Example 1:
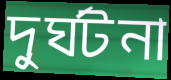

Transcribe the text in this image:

দুর্ঘটনা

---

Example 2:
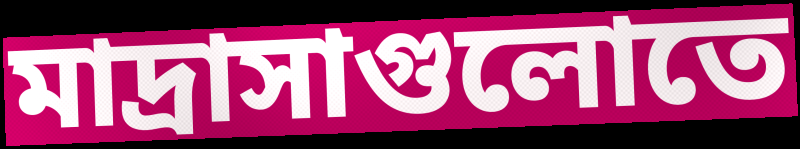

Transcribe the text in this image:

মাদ্রাসাগুলোতে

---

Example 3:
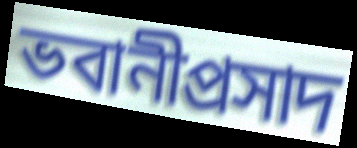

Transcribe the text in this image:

ভবানীপ্রসাদ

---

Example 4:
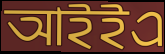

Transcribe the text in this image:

আইইএ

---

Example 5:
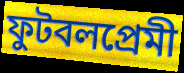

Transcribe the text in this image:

ফুটবলপ্রেমী